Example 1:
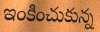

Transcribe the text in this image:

ఇంకించుకున్న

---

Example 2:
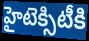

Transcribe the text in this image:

హైటెక్సిటీకి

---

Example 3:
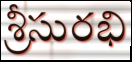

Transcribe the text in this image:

శ్రీసురభి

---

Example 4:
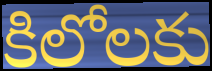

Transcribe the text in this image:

కిలోలకు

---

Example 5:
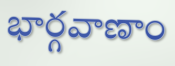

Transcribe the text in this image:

భార్గవాణాం